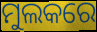
ମୁଲକରେ